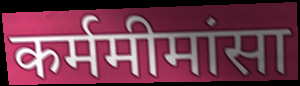
कर्ममीमांसा